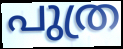
പുത്ര